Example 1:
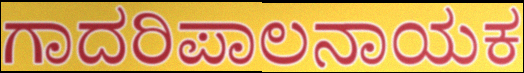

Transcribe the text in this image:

ಗಾದರಿಪಾಲನಾಯಕ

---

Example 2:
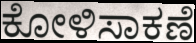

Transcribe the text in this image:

ಕೋಳಿಸಾಕಣೆ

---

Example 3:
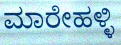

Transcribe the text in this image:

ಮಾರೇಹಳ್ಳಿ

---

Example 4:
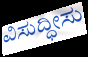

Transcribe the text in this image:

ವಿಸುದ್ಧೀಸು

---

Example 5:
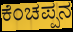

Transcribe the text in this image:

ಕೆಂಚಪ್ಪನ